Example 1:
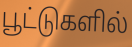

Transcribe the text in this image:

பூட்டுகளில்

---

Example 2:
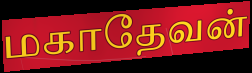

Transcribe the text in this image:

மகாதேவன்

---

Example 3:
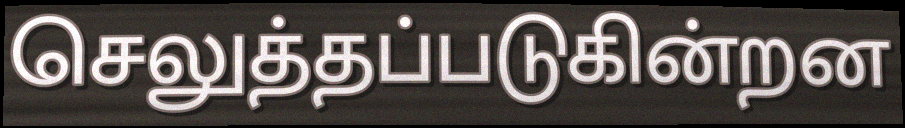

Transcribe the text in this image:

செலுத்தப்படுகின்றன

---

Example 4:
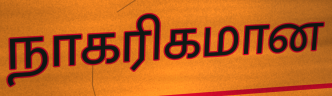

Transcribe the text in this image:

நாகரிகமான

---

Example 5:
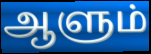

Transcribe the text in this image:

ஆளும்